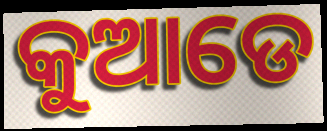
କୁଆଡେ